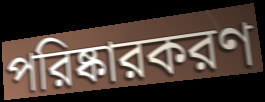
পরিষ্কারকরণ